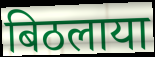
बिठलाया